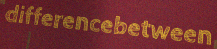
differencebetween